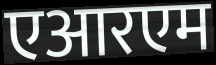
एआरएम